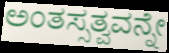
ಅಂತಸ್ಸತ್ವವನ್ನೇ